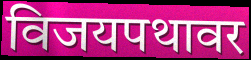
विजयपथावर